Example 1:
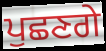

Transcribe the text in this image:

ਪੁਛਣਗੇ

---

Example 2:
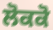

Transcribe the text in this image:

ਲੋਕਕੋ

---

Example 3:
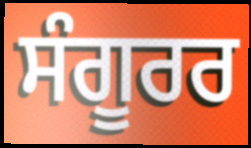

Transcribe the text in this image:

ਸੰਗੂਰਰ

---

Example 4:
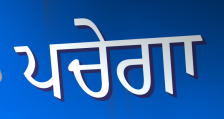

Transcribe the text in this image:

ਪਚੇਗਾ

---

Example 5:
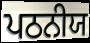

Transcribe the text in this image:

ਪਠਨੀਯ